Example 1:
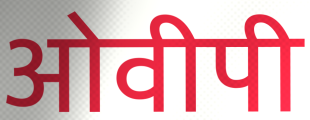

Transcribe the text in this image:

ओवीपी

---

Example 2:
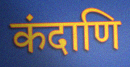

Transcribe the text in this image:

कंदाणि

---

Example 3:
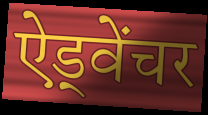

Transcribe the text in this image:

ऐड्वेंचर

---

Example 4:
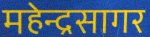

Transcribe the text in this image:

महेन्द्रसागर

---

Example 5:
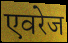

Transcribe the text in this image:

एवरेज